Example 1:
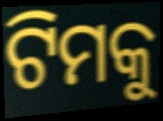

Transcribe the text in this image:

ଟିମକୁ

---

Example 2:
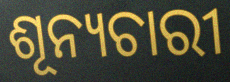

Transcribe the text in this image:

ଶୂନ୍ୟଚାରୀ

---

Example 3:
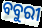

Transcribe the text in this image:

ବବୁରୀ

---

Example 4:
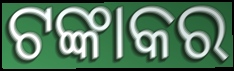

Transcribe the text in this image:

ଟଙ୍କାକର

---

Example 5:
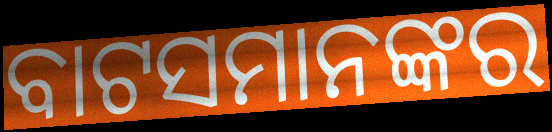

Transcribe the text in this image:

ବାଟସମାନଙ୍କର